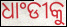
ଧାଂଡୀକୁ